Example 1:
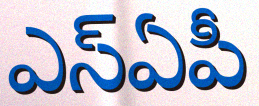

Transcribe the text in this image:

ఎస్ఏపీ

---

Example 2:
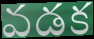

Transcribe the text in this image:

వడక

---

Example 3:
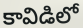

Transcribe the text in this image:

కావిడిలో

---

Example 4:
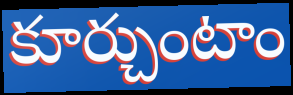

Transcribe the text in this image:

కూర్చుంటాం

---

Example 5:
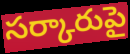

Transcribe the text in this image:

సర్కారుపై